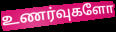
உணர்வுகளோ